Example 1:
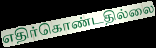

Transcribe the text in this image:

எதிர்கொண்டதில்லை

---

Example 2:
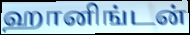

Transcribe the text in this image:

ஹானிங்டன்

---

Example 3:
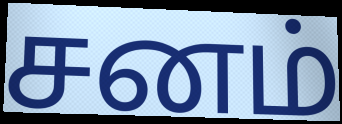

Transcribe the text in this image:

சனம்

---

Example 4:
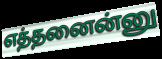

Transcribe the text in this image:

எத்தனைன்னு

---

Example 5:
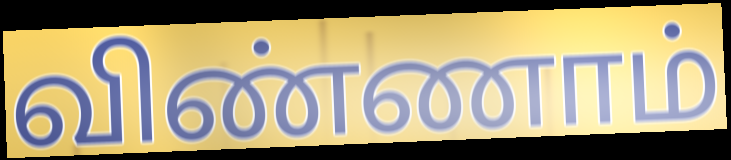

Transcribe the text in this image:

விண்ணாம்